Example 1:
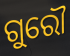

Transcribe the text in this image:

ଗୁରୌ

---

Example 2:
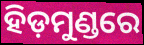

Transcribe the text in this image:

ହିଡ଼ମୁଣ୍ଡରେ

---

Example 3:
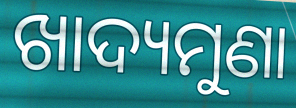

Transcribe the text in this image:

ଖାଦ୍ୟମୁଣା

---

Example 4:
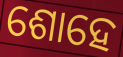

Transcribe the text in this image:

ଶୋହେ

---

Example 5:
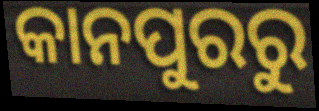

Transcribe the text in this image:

କାନପୁରରୁ